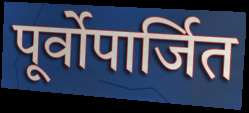
पूर्वोपार्जित